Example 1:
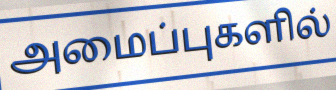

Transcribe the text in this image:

அமைப்புகளில்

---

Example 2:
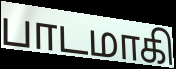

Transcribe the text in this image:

பாடமாகி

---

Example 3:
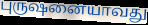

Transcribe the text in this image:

புருஷனையாவது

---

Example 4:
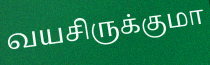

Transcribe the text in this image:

வயசிருக்குமா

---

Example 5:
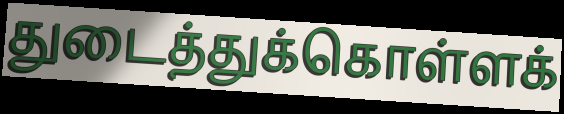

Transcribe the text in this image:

துடைத்துக்கொள்ளக்